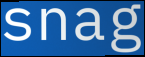
snag